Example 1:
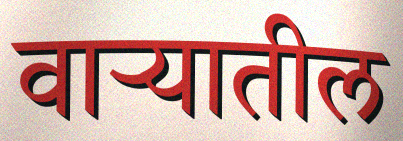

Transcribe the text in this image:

वाऱ्यातील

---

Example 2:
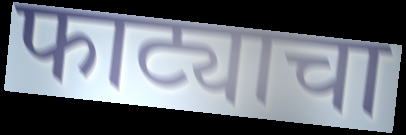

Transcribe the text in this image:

फाट्याचा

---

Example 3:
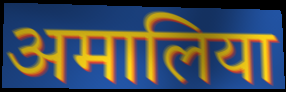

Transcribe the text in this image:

अमालिया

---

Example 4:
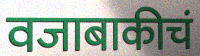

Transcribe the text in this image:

वजाबाकीचं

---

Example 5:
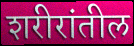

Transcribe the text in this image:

शरीरांतील